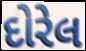
દોરેલ